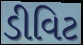
ડીવિટ